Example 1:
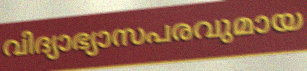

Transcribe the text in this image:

വിദ്യാഭ്യാസപരവുമായ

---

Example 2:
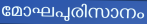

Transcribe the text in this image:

മോഘപുരിസാനം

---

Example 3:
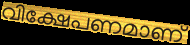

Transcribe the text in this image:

വിക്ഷേപണമാണ്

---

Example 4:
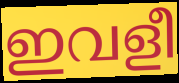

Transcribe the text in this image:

ഇവളീ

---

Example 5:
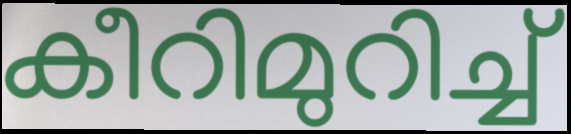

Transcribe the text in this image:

കീറിമുറിച്ച്